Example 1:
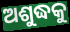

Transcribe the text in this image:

ଅଶୁଦ୍ଧକୁ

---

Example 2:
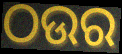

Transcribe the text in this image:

ଠଉର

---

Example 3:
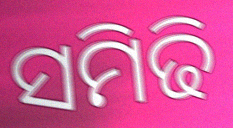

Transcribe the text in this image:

ସମିଢି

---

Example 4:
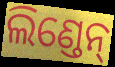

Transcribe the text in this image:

ଲିଣ୍ଡେନ୍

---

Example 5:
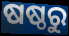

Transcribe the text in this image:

ଷଷ୍ଠରୁ